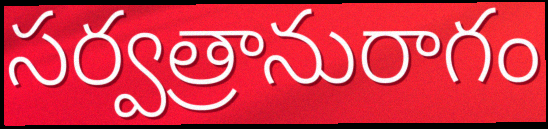
సర్వత్రానురాగం